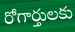
రోగార్తులకు